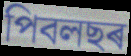
পিবলছৰ